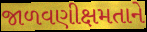
જાળવણીક્ષમતાને